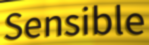
Sensible